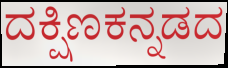
ದಕ್ಷಿಣಕನ್ನಡದ